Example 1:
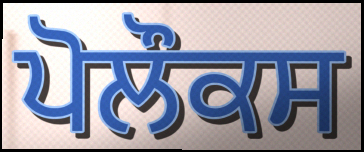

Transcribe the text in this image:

ਪੋਲੌਕਸ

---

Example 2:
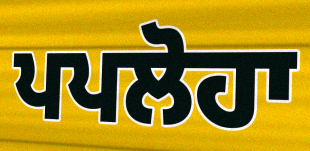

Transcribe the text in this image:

ਪਪਲੋਹਾ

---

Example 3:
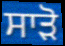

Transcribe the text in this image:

ਸਾੜੋ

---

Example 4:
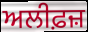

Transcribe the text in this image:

ਅਲੀਫ਼ਜ਼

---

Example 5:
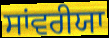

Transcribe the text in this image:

ਸਾਂਵਰੀਯਾ